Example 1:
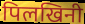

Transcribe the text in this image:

पिलखिनी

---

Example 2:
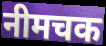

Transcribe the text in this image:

नीमचक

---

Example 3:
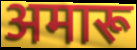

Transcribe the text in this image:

अमारू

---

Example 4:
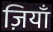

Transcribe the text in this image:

ज़ियाँ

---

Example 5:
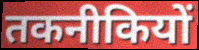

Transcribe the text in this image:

तकनीकियों